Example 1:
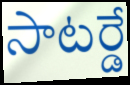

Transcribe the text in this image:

సాటర్డే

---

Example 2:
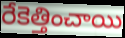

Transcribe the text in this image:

రేకెత్తించాయి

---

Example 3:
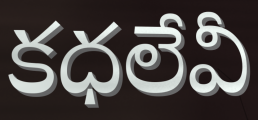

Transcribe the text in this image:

కధలేవీ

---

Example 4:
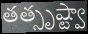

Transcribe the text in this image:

తత్సృష్ట్వా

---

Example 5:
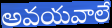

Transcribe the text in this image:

అవయవాలే